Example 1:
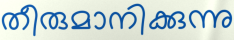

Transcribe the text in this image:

തീരുമാനിക്കുന്നു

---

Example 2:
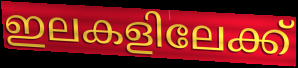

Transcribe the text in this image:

ഇലകളിലേക്ക്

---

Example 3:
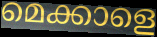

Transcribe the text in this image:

മെക്കാളെ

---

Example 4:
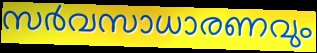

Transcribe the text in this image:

സർവസാധാരണവും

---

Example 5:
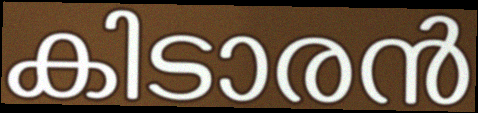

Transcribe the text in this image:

കിടാരൻ